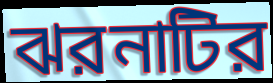
ঝরনাটির